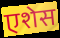
एशेस